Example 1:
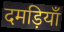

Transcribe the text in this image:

दमड़ियाँ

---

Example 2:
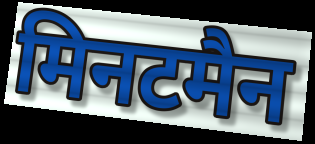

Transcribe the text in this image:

मिनटमैन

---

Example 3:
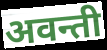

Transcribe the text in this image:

अवन्ती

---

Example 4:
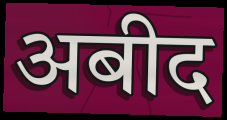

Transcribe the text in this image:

अबीद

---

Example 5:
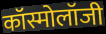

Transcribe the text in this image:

कॉस्मोलॉजी